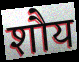
शौय